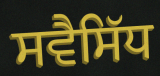
ਸਵੈਸਿੱਧ